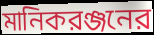
মানিকরঞ্জনের